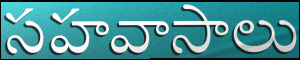
సహవాసాలు